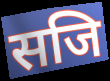
सजि